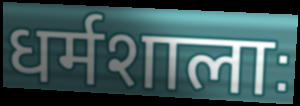
धर्मशालाः